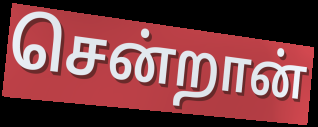
சென்றான்